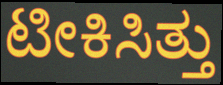
ಟೀಕಿಸಿತ್ತು